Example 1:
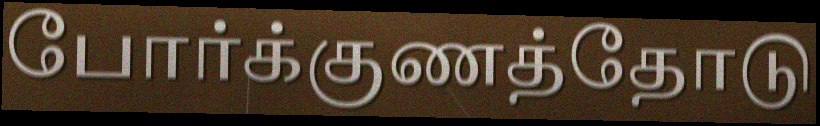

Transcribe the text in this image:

போர்க்குணத்தோடு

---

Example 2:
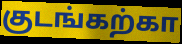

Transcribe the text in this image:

குடங்கற்கா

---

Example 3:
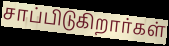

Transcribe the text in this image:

சாப்பிடுகிறார்கள்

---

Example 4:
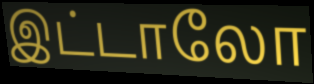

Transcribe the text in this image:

இட்டாலோ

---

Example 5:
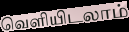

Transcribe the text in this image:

வெளியிடலாம்